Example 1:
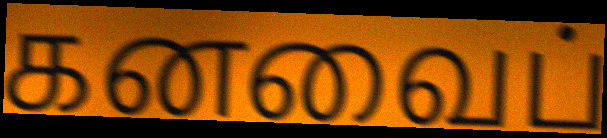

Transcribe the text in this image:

கனவைப்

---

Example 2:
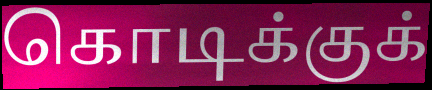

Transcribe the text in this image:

கொடிக்குக்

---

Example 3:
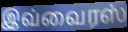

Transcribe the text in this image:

இவ்வைரஸ்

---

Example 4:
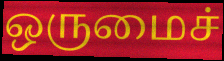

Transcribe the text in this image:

ஒருமைச்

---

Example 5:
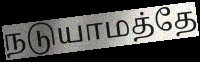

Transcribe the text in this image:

நடுயாமத்தே